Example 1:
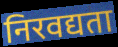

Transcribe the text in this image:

निरवद्यता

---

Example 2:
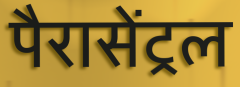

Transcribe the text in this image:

पैरासेंट्रल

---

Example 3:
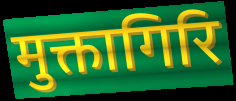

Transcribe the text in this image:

मुक्तागिरि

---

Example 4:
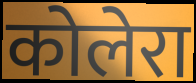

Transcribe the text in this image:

कोलेरा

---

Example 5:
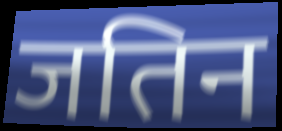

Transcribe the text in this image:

जतिन